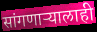
सांगणाऱ्यालाही